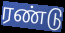
ரண்டு